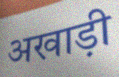
अखाड़ी